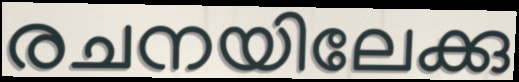
രചനയിലേക്കു